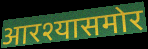
आरश्यासमोर